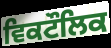
ਵਿਕਟੌਲਿਕ